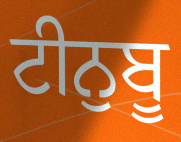
ਟੀਨੁਬੂ